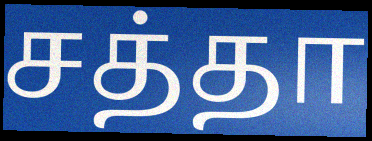
சத்தா